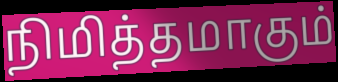
நிமித்தமாகும்